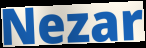
Nezar